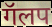
गॅलप